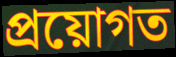
প্ৰয়োগত